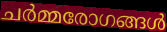
ചർമ്മരോഗങ്ങൾ